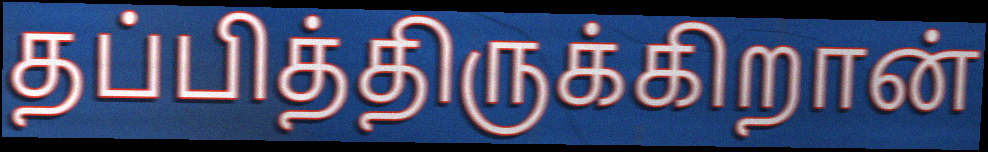
தப்பித்திருக்கிறான்